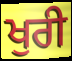
ਖੁਰੀ